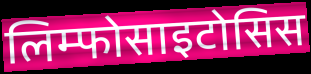
लिम्फोसाइटोसिस